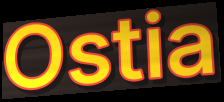
Ostia